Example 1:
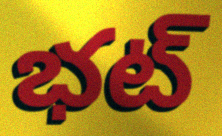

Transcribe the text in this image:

భట్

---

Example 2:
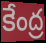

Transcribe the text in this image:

కేంద్ర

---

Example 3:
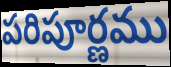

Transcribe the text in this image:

పరిపూర్ణము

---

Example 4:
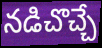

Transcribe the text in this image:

నడిచొచ్చే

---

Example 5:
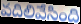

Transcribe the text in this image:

వదిలివేసింది